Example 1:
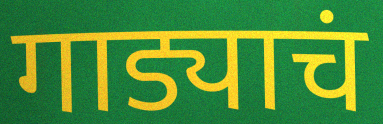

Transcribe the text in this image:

गाड्याचं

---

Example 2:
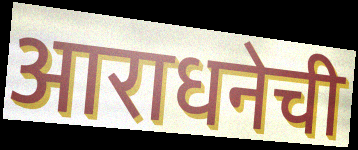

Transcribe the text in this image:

आराधनेची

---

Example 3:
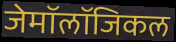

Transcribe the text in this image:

जेमॉलॉजिकल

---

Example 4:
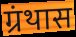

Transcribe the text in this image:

ग्रंथास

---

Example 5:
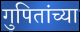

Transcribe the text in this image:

गुपितांच्या